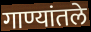
गाण्यांतले